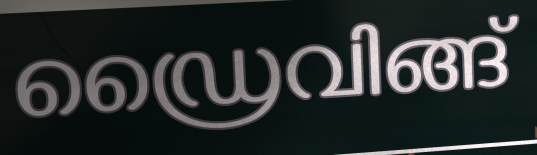
ഡ്രൈവിങ്ങ്